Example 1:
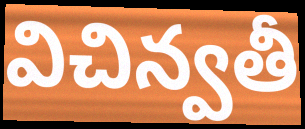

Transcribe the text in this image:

విచిన్వతీ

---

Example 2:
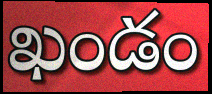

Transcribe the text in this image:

ఖండం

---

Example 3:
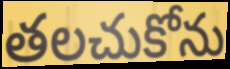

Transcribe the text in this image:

తలచుకోను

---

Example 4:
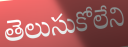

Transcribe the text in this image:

తెలుసుకోలేని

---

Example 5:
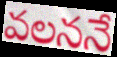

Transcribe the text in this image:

వలననే